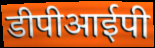
डीपीआईपी